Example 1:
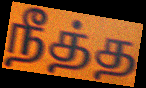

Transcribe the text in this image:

நீத்த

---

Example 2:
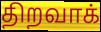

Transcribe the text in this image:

திறவாக்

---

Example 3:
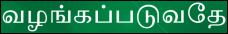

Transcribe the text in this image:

வழங்கப்படுவதே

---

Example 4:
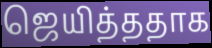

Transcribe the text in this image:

ஜெயித்ததாக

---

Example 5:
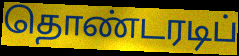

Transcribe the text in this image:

தொண்டரடிப்